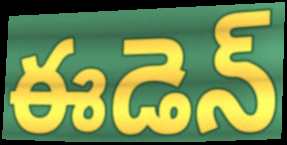
ఈడెన్